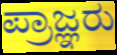
ಪ್ರಾಜ್ಞರು